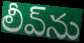
లీవ్‌ను